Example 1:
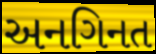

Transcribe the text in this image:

અનગિનત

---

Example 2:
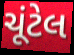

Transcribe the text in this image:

ચૂંટેલ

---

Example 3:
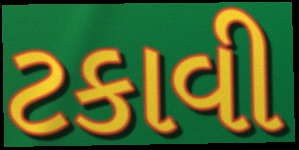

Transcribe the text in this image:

ટકાવી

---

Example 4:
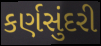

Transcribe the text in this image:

કર્ણસુંદરી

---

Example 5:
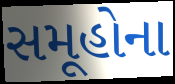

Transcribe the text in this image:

સમૂહોના